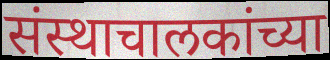
संस्थाचालकांच्या